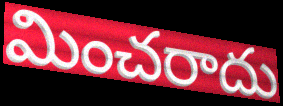
మించరాదు